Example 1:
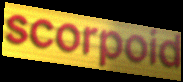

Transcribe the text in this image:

scorpoid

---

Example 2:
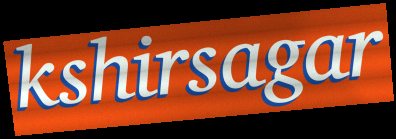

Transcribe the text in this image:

kshirsagar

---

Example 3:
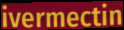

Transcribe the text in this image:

ivermectin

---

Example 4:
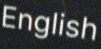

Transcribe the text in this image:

English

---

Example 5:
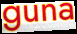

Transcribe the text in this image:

guna